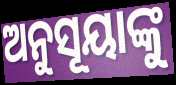
ଅନୁସୂୟାଙ୍କୁ